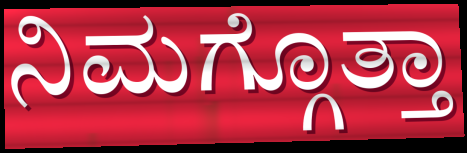
ನಿಮಗ್ಗೊತ್ತಾ